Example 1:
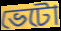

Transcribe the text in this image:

ভেটো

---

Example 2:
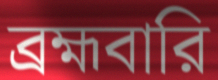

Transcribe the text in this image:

ব্রহ্মবারি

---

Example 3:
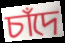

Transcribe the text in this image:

চাঁদে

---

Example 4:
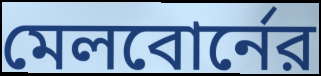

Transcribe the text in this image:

মেলবোর্নের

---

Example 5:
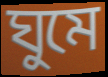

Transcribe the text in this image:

ঘুমে